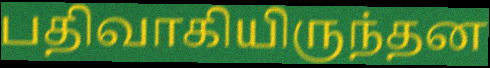
பதிவாகியிருந்தன